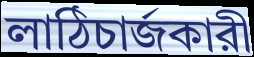
লাঠিচার্জকারী